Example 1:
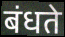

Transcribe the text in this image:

बंधते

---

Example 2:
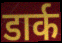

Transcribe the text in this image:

डार्क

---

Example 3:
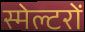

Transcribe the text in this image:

स्मेल्टरों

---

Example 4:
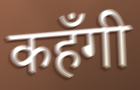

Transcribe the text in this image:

कहँगी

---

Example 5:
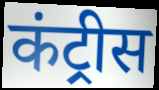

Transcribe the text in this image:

कंट्रीस